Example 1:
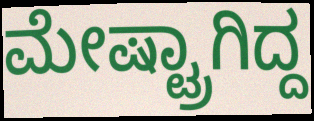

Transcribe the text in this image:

ಮೇಷ್ಟ್ರಾಗಿದ್ದ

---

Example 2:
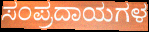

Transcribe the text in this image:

ಸಂಪ್ರದಾಯಗಳ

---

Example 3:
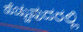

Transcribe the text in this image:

ಹೆಚ್ಚುವುದರಲ್ಲಿ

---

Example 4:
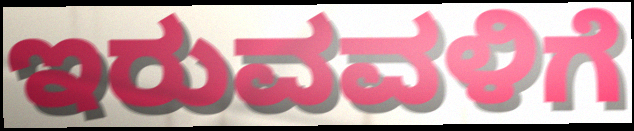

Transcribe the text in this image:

ಇರುವವಳಿಗೆ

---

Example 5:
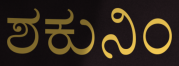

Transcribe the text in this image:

ಶಕುನಿಂ